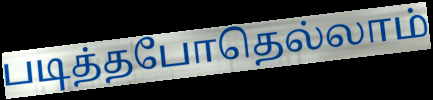
படித்தபோதெல்லாம்